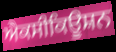
ਐਕਸੀਕਿਊਸ਼ਨ